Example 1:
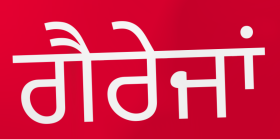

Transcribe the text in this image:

ਗੈਰੇਜਾਂ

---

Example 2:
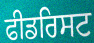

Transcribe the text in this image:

ਫੀਡਰਿਸਟ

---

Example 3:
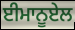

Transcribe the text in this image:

ਈਮਾਨੂਏਲ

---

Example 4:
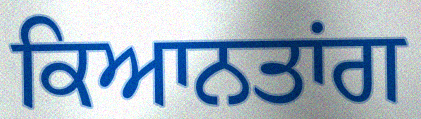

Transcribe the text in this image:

ਕਿਆਨਤਾਂਗ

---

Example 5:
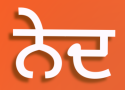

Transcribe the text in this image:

ਨੇਦ